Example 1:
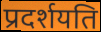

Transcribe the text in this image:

प्रदर्शयति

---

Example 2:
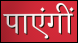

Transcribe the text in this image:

पाएंगीं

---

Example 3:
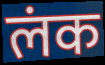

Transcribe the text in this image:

लंक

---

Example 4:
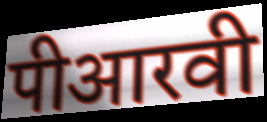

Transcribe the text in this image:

पीआरवी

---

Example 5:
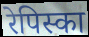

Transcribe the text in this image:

रेपिस्का